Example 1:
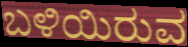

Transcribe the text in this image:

ಬಳಿಯಿರುವ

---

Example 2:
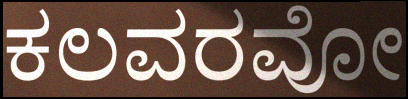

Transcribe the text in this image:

ಕಲವರವೋ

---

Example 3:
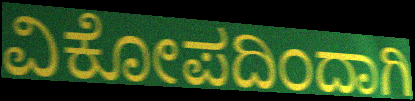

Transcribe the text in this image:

ವಿಕೋಪದಿಂದಾಗಿ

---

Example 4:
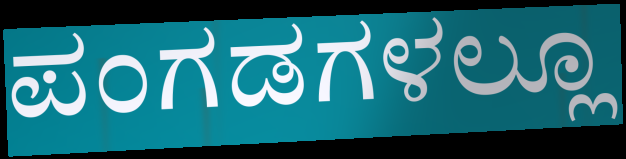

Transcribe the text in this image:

ಪಂಗಡಗಳಲ್ಲೂ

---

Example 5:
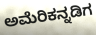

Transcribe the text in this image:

ಅಮೆರಿಕನ್ನಡಿಗ